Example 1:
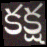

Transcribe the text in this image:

కక్ష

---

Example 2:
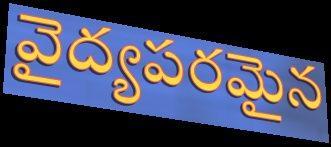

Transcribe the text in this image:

వైద్యపరమైన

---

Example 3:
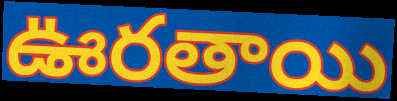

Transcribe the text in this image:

ఊరతాయి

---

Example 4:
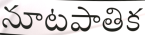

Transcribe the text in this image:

నూటపాతిక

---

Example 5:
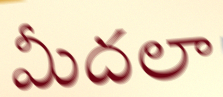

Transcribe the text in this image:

మీదలా